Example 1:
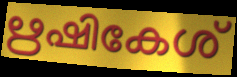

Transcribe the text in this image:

ഋഷികേശ്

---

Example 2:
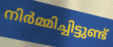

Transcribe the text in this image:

നിർമ്മിച്ചിട്ടുണ്ട്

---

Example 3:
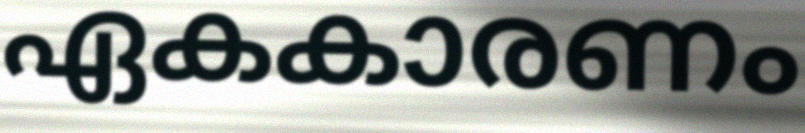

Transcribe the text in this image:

ഏകകാരണം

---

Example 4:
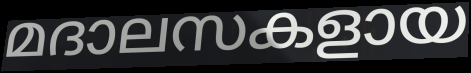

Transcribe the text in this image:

മദാലസകളായ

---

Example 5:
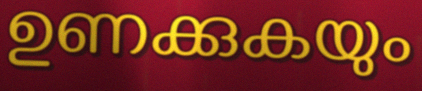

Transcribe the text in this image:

ഉണക്കുകയും